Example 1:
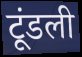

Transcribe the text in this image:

टूंडली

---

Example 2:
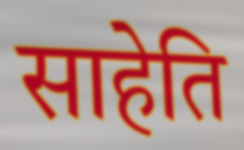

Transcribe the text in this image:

साहेति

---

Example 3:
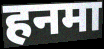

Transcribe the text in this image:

हनमा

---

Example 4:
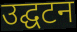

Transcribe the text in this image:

उद्घटन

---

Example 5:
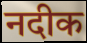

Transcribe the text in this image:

नदीक